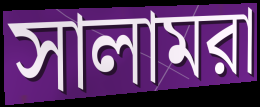
সালামরা